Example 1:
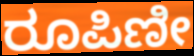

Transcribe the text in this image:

ರೂಪಿಣೀ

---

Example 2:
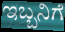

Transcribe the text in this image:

ಇಬ್ಬನಿಗೆ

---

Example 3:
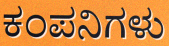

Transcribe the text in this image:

ಕಂಪನಿಗಳು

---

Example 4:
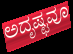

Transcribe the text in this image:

ಅದೃಷ್ಟವೂ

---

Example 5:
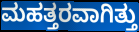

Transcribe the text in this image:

ಮಹತ್ತರವಾಗಿತ್ತು